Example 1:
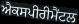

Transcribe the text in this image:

ਐਕਸਪੀਰੀਮੈਂਟਲ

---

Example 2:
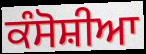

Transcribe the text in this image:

ਕੰਸੋਸ਼ੀਆ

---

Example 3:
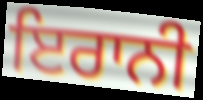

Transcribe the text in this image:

ਇਰਾਨੀ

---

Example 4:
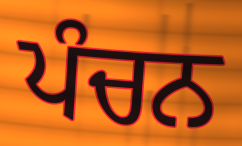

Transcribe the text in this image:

ਪੰਚਨ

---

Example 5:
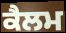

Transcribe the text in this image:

ਕੈਲਮ